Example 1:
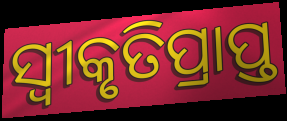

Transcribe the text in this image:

ସ୍ବୀକୃତିପ୍ରାପ୍ତ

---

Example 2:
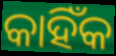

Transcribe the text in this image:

କାହିଁକ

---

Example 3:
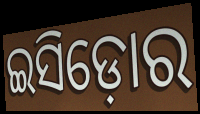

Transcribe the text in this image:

ଇସିଡ଼ୋର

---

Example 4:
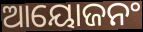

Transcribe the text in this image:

ଆୟୋଜନଂ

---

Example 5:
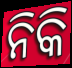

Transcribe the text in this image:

ନିକି